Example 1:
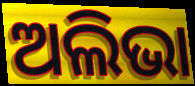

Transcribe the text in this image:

ଅଲିଭା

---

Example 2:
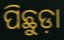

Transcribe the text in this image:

ପିଛୁଡ଼ା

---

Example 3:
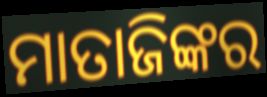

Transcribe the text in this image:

ମାତାଜିଙ୍କର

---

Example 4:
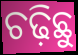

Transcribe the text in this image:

ଚଢ଼ିଛୁ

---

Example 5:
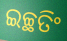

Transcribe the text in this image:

ଇଚ୍ଛତିଂ